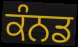
ਕੰਨਡ